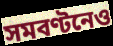
সমবণ্টনেও